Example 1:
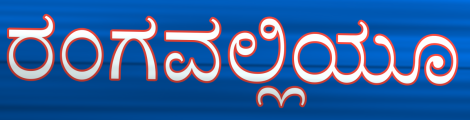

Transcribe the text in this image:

ರಂಗವಲ್ಲಿಯೂ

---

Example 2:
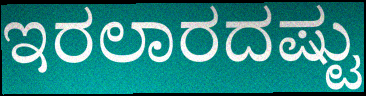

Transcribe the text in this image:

ಇರಲಾರದಷ್ಟು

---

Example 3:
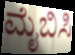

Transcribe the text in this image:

ಮೈಬಿಸಿ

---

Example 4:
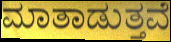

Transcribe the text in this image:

ಮಾತಾಡುತ್ತವೆ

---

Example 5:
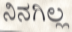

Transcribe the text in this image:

ನಿನಗಿಲ್ಲ